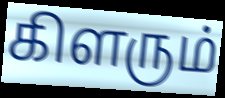
கிளரும்